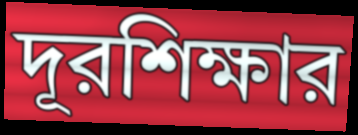
দূরশিক্ষার